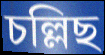
চল্লিছ